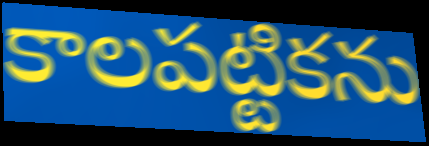
కాలపట్టికను